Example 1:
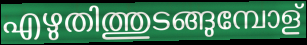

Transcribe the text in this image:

എഴുതിത്തുടങ്ങുമ്പോള്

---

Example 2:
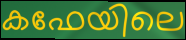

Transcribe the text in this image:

കഫേയിലെ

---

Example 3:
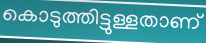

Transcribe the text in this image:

കൊടുത്തിട്ടുള്ളതാണ്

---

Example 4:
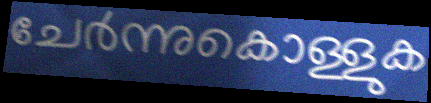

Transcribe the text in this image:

ചേർന്നുകൊള്ളുക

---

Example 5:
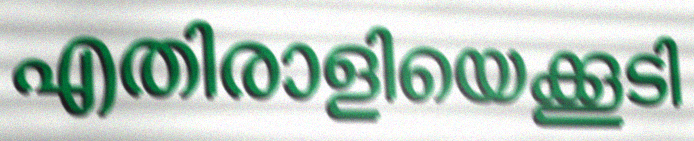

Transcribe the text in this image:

എതിരാളിയെക്കൂടി